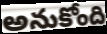
అనుకోంది